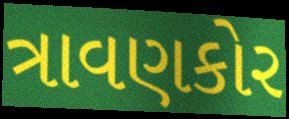
ત્રાવણકોર